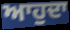
ਆਹੁਦਾ